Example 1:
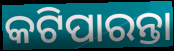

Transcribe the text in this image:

କଟିପାରନ୍ତା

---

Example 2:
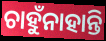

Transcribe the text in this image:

ଚାହୁଁନାହାନ୍ତି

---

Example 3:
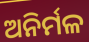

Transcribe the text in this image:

ଅନିର୍ମଳ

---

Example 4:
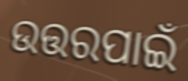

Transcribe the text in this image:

ଉତ୍ତରପାଇଁ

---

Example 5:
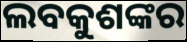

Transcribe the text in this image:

ଲବକୁଶଙ୍କର